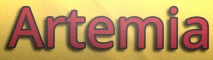
Artemia